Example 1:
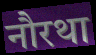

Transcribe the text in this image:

नौरथा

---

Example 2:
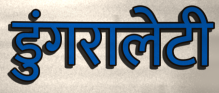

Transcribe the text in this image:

डुंगरालेटी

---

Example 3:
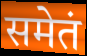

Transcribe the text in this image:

समेतं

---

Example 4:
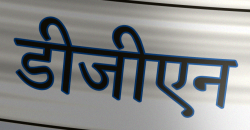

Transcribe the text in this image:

डीजीएन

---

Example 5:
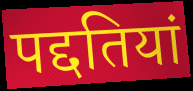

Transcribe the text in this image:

पद्दतियां